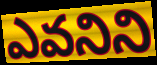
ఎవనిని